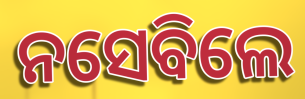
ନସେବିଲେ